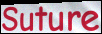
Suture